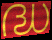
ദ്ധ